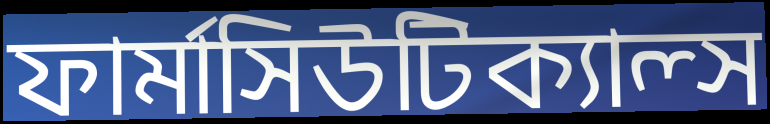
ফার্মাসিউটিক্যাল্স